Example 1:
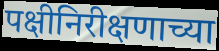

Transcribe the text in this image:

पक्षीनिरीक्षणाच्या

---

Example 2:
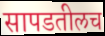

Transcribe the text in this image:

सापडतीलच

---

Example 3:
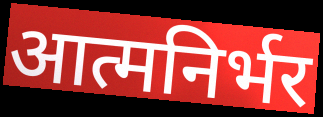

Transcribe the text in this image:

आत्मनिर्भर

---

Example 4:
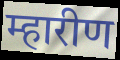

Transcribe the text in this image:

म्हारीण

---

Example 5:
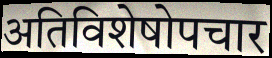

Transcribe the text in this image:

अतिविशेषोपचार